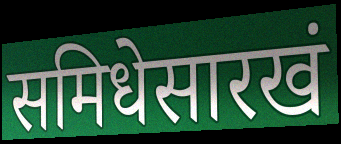
समिधेसारखं